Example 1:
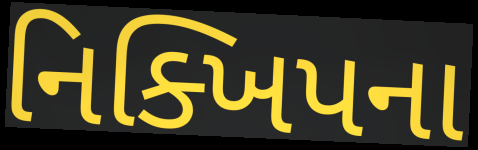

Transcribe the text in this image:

નિક્ખિપના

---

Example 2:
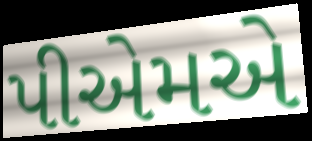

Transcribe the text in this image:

પીએમએ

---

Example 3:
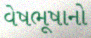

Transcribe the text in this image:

વેષભૂષાનો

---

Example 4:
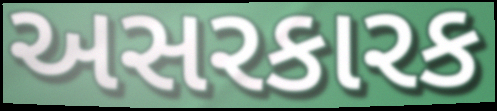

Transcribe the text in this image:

અસરકારક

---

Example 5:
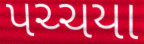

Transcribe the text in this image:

પચ્ચયા